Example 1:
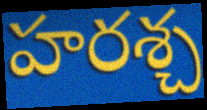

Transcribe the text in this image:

హరశ్చ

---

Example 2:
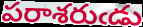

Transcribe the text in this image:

పరాశరుఁడు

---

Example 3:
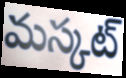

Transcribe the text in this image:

మస్కట్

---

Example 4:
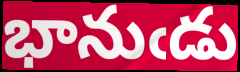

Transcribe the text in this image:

భానుఁడు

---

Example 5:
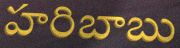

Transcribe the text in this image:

హరిబాబు